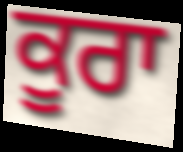
ਕੂਰਾ